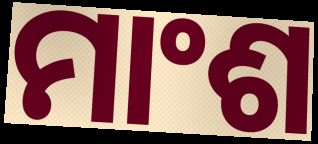
ମାଂଶ